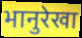
भानुरेखा